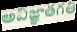
అవిజ్ఞాతగతి